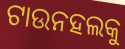
ଟାଉନହଲକୁ